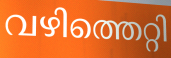
വഴിത്തെറ്റി